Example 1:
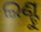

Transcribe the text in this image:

ଇଣ୍ଟୁ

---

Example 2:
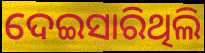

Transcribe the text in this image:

ଦେଇସାରିଥିଲି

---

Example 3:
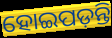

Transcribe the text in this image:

ହୋଇପଡ଼ନ୍ତି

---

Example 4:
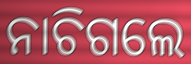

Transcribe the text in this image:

ନାଚିଗଲେ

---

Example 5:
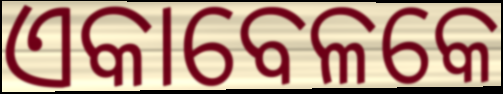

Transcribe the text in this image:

ଏକାବେଳକେ